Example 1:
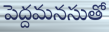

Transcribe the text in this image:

పెద్దమనసుతో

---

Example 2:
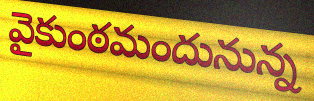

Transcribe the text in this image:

వైకుంఠమందునున్న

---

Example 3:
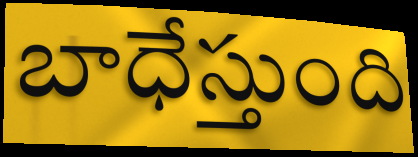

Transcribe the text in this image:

బాధేస్తుంది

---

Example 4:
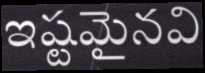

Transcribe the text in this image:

ఇష్టమైనవి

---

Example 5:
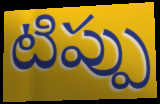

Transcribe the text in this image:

టిప్పు